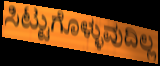
ಸಿಟ್ಟುಗೊಳ್ಳುವುದಿಲ್ಲ